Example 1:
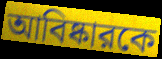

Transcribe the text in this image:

আবিষ্কারকে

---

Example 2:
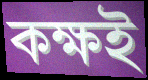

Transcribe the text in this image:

কক্ষই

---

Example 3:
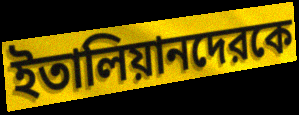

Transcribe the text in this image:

ইতালিয়ানদেরকে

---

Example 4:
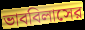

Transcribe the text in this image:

ভাববিলাসের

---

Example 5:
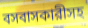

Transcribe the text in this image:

বসবাসকারীসহ